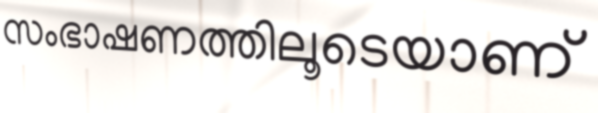
സംഭാഷണത്തിലൂടെയാണ്